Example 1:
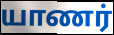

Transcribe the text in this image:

யாணர்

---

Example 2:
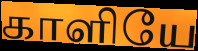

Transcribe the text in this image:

காளியே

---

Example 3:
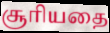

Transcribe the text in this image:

சூரியதை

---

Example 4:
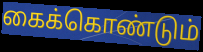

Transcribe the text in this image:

கைக்கொண்டும்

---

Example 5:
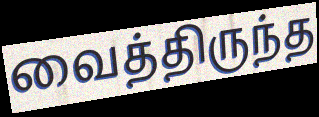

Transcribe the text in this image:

வைத்திருந்த